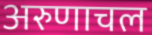
अरुणाचल